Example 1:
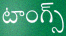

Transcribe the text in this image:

టాంగ్స్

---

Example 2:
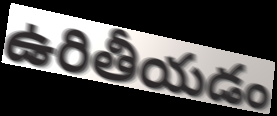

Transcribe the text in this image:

ఉరితీయడం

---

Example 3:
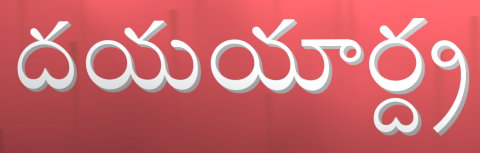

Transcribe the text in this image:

దయయార్ద్ర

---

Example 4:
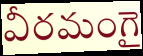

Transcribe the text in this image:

వీరమంగై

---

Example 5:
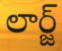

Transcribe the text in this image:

లార్జ్